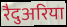
रैदुअरिया